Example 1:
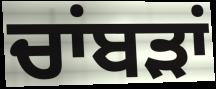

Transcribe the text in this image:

ਚਾਂਬੜਾਂ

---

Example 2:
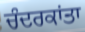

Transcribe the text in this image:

ਚੰਦਰਕਾਂਤਾ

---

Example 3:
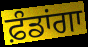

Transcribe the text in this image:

ਫ਼ੰਡਾਂਗਾ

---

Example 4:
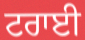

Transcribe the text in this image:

ਟਰਾਈ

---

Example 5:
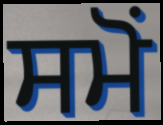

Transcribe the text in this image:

ਸਮੋਂ